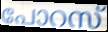
പോറസ്